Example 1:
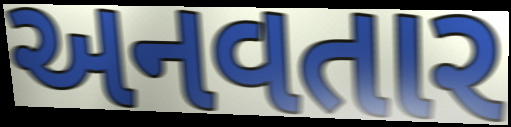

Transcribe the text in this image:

અનવતાર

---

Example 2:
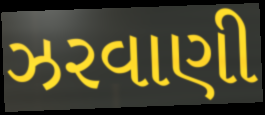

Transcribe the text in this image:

ઝરવાણી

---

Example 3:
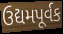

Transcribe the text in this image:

ઉદ્યમપૂર્વક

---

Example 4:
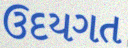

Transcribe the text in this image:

ઉદયગત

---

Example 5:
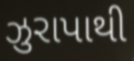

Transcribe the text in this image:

ઝુરાપાથી